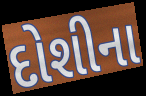
દોશીના